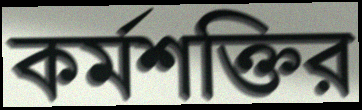
কর্মশক্তির